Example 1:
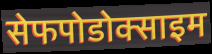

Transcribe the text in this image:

सेफपोडोक्साइम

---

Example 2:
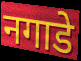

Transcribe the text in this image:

नगाडे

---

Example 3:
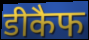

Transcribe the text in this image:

डीकैफ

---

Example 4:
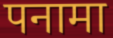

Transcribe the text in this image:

पनामा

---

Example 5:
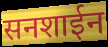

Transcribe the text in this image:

सनशाईन